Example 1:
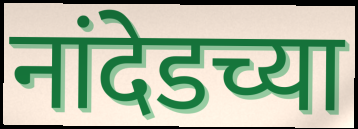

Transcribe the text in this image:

नांदेडच्या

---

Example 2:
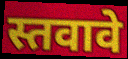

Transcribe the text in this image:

स्तवावे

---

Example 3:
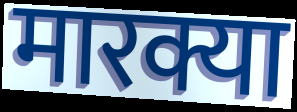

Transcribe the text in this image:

मारक्या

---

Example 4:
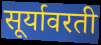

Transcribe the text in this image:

सूर्यावरती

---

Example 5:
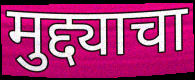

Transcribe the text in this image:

मुद्द्याचा